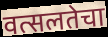
वत्सलतेचा